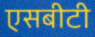
एसबीटी